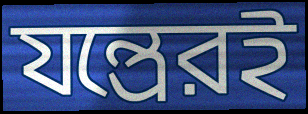
যন্ত্রেরই